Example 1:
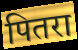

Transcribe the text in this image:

पितरा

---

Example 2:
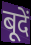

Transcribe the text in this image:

बूदें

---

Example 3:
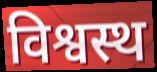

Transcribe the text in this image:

विश्वस्थ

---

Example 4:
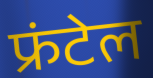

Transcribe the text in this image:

फ्रंटेल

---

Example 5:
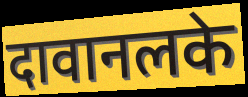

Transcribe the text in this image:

दावानलके